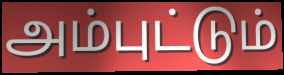
அம்புட்டும்